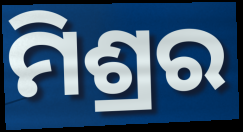
ମିଶ୍ରର